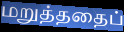
மறுத்ததைப்